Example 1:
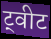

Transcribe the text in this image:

ट्‍वीट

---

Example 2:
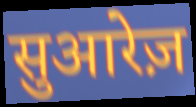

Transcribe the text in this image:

सुआरेज़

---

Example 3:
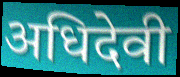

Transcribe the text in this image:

अधिदेवी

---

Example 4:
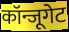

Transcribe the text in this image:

कॉन्जूगेट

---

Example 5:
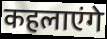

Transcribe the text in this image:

कहलाएंगे